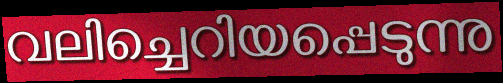
വലിച്ചെറിയപ്പെടുന്നു